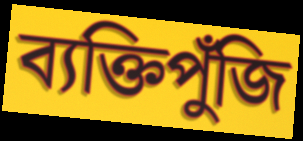
ব্যক্তিপুঁজি